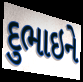
દુભાઇને